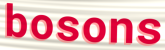
bosons